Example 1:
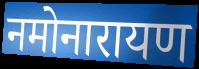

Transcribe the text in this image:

नमोनारायण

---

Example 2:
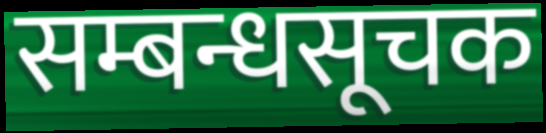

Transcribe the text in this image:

सम्बन्धसूचक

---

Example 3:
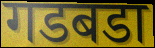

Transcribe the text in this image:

गडबडा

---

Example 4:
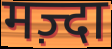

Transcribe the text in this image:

मज़्दा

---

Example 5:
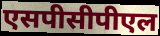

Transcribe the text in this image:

एसपीसीपीएल